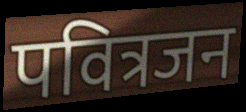
पवित्रजन